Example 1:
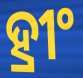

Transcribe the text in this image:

ହ୍ରୀଂ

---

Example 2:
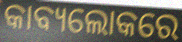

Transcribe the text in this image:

କାବ୍ୟଲୋକରେ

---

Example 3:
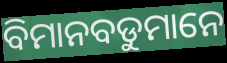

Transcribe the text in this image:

ବିମାନବଡୁମାନେ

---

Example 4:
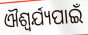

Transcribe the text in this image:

ଐଶ୍ୱର୍ଯ୍ୟପାଇଁ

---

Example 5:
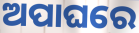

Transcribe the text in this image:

ଅପାଘରେ